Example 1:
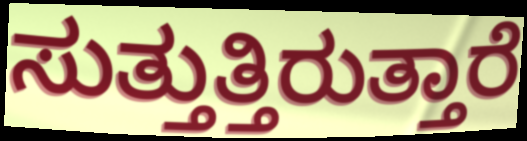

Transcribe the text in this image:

ಸುತ್ತುತ್ತಿರುತ್ತಾರೆ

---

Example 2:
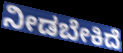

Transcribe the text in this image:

ನೀಡಬೇಕಿದೆ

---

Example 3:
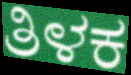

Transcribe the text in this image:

ತಿಳಕ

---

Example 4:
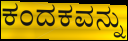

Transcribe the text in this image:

ಕಂದಕವನ್ನು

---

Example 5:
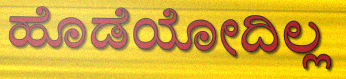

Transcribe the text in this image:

ಹೊಡೆಯೋದಿಲ್ಲ